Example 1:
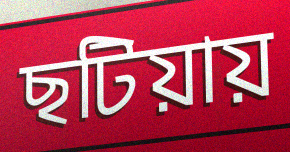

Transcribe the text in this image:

ছটিয়ায়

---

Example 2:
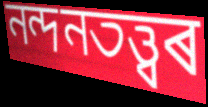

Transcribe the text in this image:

নন্দনতত্ত্বৰ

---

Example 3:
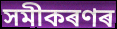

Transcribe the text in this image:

সমীকৰণৰ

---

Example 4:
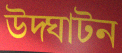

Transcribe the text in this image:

উদ্ঘাটন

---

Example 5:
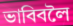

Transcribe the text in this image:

ভাবিবলৈ